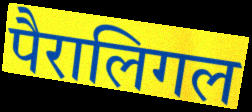
पैरालिगल